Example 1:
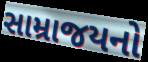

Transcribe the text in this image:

સામ્રાજયનો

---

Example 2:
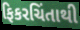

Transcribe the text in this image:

ફિકરચિંતાથી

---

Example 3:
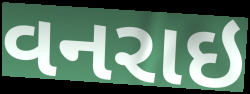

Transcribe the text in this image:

વનરાઇ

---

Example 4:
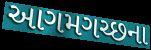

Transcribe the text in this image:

આગમગચ્છના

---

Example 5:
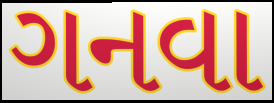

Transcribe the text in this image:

ગનવા